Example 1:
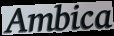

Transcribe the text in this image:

Ambica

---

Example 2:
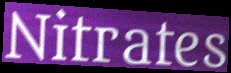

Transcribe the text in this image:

Nitrates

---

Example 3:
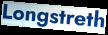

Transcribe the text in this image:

Longstreth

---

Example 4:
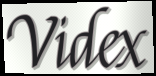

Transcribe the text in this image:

Videx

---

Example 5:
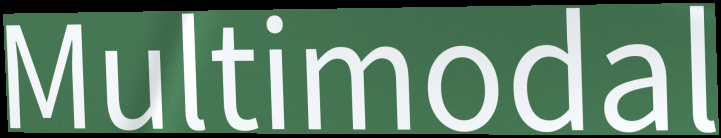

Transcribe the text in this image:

Multimodal